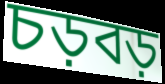
চড়বড়